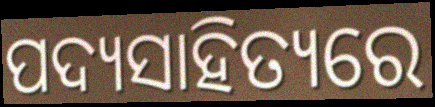
ପଦ୍ୟସାହିତ୍ୟରେ